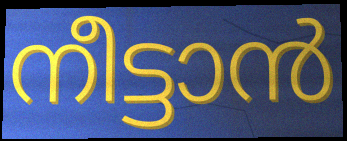
നീട്ടാൻ